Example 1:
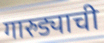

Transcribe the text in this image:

गारुड्याची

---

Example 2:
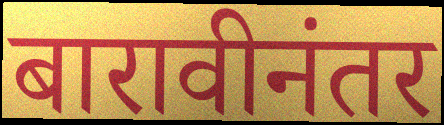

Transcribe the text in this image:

बारावीनंतर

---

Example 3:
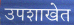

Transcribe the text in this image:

उपशाखेत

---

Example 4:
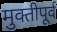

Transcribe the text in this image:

मुक्तीपूर्व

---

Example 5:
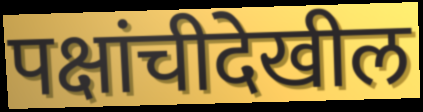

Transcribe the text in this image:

पक्षांचीदेखील